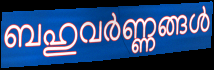
ബഹുവർണ്ണങ്ങൾ